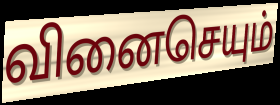
வினைசெயும்